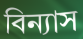
বিন্যাস